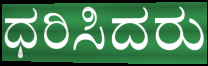
ಧರಿಸಿದರು